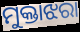
ମୁକ୍ତାଝରା